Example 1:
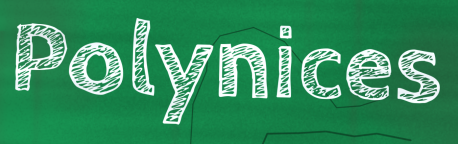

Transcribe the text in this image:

Polynices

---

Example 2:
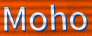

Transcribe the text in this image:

Moho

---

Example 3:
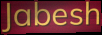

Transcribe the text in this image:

Jabesh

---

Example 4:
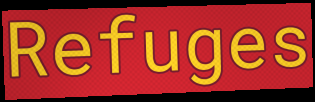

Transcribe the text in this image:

Refuges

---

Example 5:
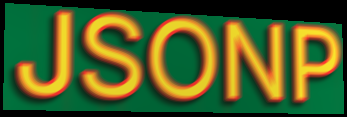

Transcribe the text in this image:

JSONP